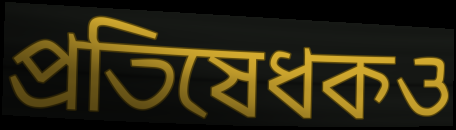
প্রতিষেধকও